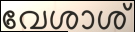
വേശാശ്